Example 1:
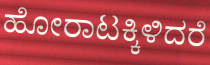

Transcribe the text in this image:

ಹೋರಾಟಕ್ಕಿಳಿದರೆ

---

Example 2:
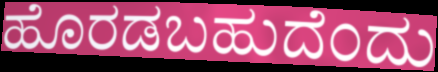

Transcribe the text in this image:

ಹೊರಡಬಹುದೆಂದು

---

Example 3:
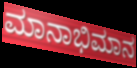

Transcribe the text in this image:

ಮಾನಾಭಿಮಾನ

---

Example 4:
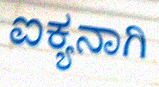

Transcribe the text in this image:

ಐಕ್ಯನಾಗಿ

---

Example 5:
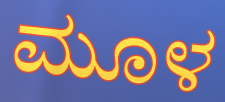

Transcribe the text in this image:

ಮೂಳ